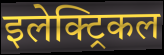
इलेक्ट्रिकल